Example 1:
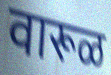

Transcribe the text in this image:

वारूळ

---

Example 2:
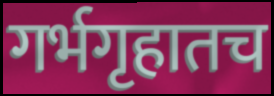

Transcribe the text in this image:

गर्भगृहातच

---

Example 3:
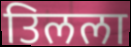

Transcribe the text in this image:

उिलला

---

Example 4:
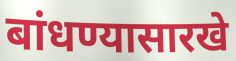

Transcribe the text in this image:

बांधण्यासारखे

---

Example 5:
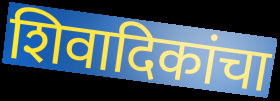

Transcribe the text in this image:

शिवादिकांचा